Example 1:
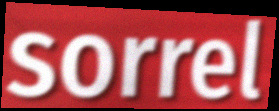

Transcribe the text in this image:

sorrel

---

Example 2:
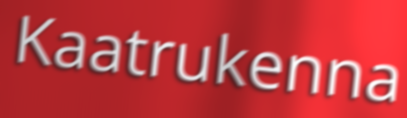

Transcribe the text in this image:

Kaatrukenna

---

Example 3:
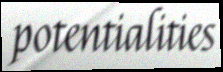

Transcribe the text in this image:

potentialities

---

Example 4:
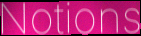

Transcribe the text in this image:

Notions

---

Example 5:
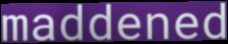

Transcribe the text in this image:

maddened